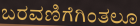
ಬರವಣಿಗೆಗಿಂತಲೂ